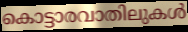
കൊട്ടാരവാതിലുകൾ